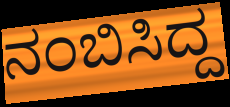
ನಂಬಿಸಿದ್ದ